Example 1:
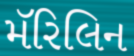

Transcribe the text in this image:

મૅરિલિન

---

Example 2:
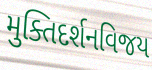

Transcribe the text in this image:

મુક્તિદર્શનવિજય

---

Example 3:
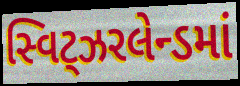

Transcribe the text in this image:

સ્વિટ્ઝરલેન્ડમાં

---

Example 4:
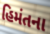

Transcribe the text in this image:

હિમંતના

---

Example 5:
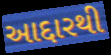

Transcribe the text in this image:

આદ્દારથી